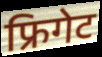
फ्रिगेट